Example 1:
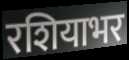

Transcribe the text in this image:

रशियाभर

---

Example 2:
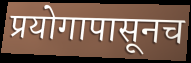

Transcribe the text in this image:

प्रयोगापासूनच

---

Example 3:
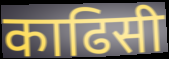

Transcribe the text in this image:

काढिसी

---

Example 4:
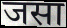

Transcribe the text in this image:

जसा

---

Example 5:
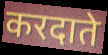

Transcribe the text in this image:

करदाते